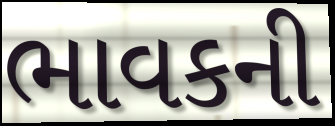
ભાવકની